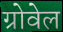
ग्रोवेल